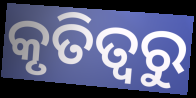
କୃତିତ୍ଵରୁ